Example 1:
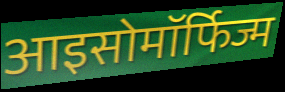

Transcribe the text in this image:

आइसोमॉर्फिज्म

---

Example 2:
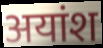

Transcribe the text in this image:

अयांश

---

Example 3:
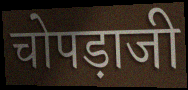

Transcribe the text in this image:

चोपड़ाजी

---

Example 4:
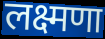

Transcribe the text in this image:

लक्ष्मणा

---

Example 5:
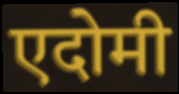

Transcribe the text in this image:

एदोमी